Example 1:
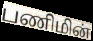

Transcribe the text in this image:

பணிமின்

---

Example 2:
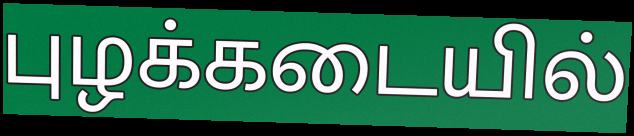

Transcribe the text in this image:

புழக்கடையில்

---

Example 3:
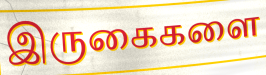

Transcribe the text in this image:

இருகைகளை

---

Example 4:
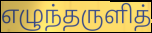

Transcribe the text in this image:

எழுந்தருளித்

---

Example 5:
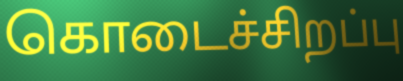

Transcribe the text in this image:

கொடைச்சிறப்பு